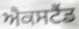
ਐਕਸਟੈਂਡ